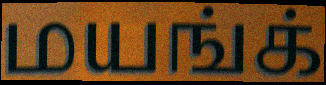
மயங்க்